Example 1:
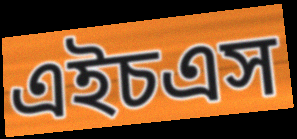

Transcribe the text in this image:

এইচএস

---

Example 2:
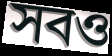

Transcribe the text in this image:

সবও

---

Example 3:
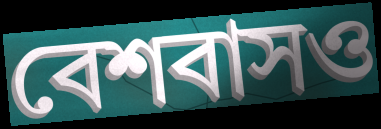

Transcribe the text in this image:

বেশবাসও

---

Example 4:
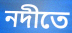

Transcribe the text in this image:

নদীতে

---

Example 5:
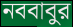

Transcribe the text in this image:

নববাবুর